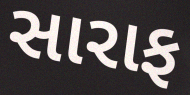
સારાફ